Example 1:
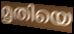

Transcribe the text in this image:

മൃതിയെ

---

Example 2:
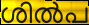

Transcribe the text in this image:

ശിൽപ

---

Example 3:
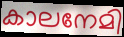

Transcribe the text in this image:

കാലനേമി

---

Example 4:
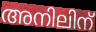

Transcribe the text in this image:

അനിലിന്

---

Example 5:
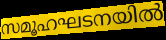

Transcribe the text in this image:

സമൂഹഘടനയിൽ